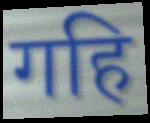
गहि